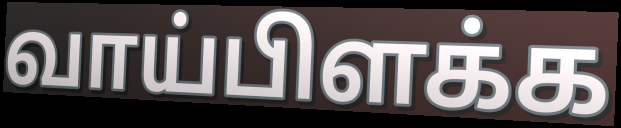
வாய்பிளக்க